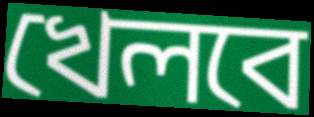
খেলবে